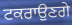
ਟਕਰਾਉਣਗੇ